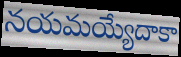
నయమయ్యేదాకా